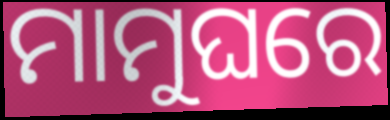
ମାମୁଘରେ